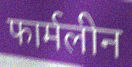
फार्मलीन